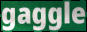
gaggle